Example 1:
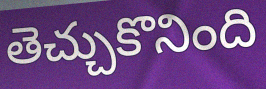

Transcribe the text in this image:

తెచ్చుకొనింది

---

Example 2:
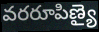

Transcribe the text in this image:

వరరూపిణ్యై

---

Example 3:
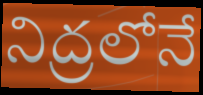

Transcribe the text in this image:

నిద్రలోనే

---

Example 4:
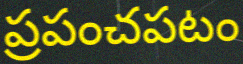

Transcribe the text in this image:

ప్రపంచపటం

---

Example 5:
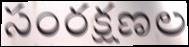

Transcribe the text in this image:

సంరక్షణల